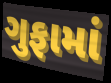
ગુફામાં